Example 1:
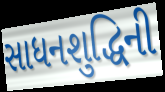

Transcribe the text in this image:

સાધનશુદ્ધિની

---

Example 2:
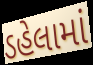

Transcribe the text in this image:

ડહેલામાં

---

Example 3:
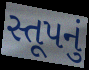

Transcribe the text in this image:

સ્તૂપનું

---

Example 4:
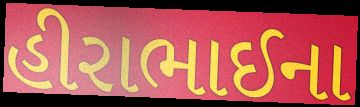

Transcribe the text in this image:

હીરાભાઈના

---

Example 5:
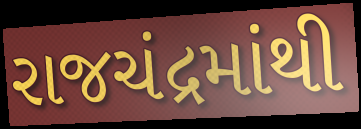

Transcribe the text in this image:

રાજચંદ્રમાંથી